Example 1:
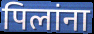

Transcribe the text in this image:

पिलांना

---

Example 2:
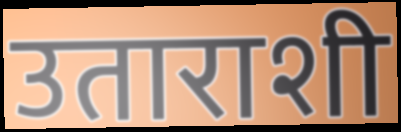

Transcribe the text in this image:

उताराशी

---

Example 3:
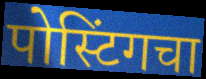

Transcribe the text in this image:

पोस्टिंगचा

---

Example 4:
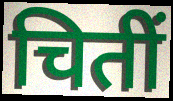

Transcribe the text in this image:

चितीं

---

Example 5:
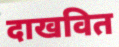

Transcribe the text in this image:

दाखवित